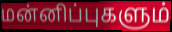
மன்னிப்புகளும்